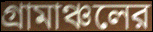
গ্রামাঞ্চলের